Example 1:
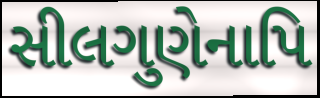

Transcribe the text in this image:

સીલગુણેનાપિ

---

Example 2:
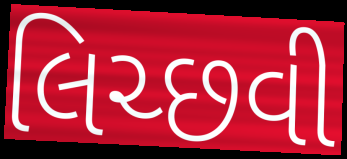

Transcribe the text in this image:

લિચ્છવી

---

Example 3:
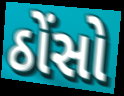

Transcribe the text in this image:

ઠોંસો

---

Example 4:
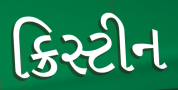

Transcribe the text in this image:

ક્રિસ્ટીન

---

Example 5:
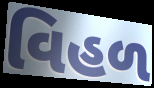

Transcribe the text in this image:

વિહળ